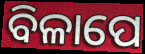
ବିଳାପେ